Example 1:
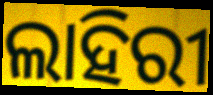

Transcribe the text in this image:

ଲାହିରୀ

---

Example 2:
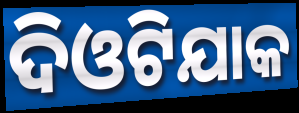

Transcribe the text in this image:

ଦିଓଟିଯାକ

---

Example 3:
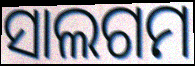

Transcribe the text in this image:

ସାଲଗମ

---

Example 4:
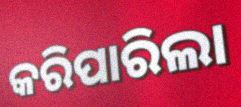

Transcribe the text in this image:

କରିପାରିଲା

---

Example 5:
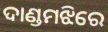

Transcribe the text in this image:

ଦାଣ୍ଡମଝିରେ